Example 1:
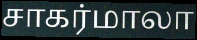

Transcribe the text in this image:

சாகர்மாலா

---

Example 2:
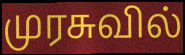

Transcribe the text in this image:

முரசுவில்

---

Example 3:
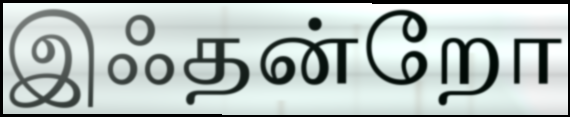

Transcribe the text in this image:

இஃதன்றோ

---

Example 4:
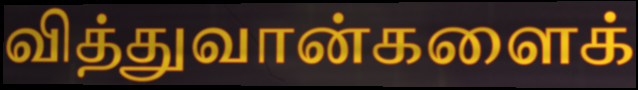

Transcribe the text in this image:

வித்துவான்களைக்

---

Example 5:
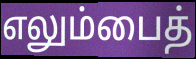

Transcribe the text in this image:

எலும்பைத்